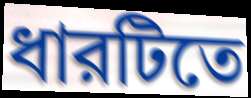
ধারটিতে